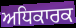
ਅਧਿਕਾਰਕ